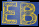
EB